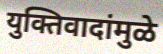
युक्तिवादांमुळे